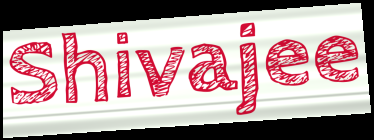
Shivajee